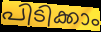
പിടിക്കാം